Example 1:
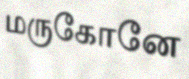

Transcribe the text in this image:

மருகோனே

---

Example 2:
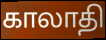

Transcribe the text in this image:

காலாதி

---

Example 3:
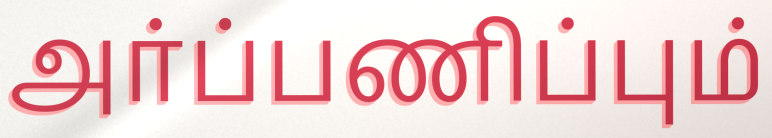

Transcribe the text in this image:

அர்ப்பணிப்பும்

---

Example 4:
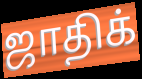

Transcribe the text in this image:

ஜாதிக்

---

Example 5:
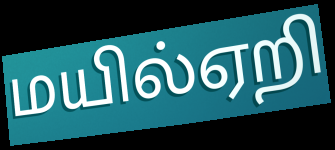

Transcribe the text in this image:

மயில்ஏறி